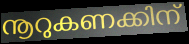
നൂറുകണക്കിന്